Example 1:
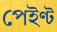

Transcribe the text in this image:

পেইণ্ট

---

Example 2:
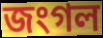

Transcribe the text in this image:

জংগল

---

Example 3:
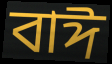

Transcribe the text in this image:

বাঈ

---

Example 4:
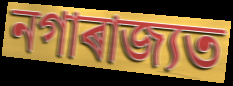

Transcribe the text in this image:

নগাৰাজ্যত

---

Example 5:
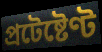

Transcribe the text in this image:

প্ৰটেষ্টেণ্ট